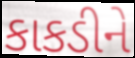
કાકડીને